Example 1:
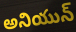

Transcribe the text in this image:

అనియున్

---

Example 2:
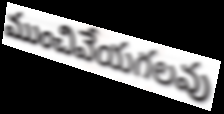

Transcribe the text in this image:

ముంచివేయగలవు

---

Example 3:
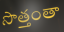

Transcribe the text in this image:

సొత్తంతా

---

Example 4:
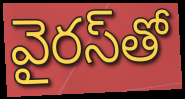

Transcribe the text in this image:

వైరస్‌తో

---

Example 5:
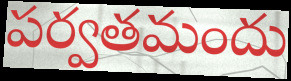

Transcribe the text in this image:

పర్వతమందు